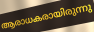
ആരാധകരായിരുന്നു